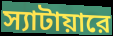
স্যাটায়ারে